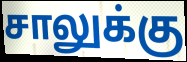
சாலுக்கு